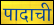
पादाची